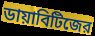
ডায়াবিটিজের